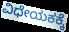
ವಿಧೇಯಕಕ್ಕೆ